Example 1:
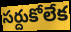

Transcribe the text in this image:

సర్దుకోలేక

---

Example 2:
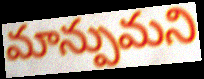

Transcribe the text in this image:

మాన్పుమని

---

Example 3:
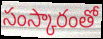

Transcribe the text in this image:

సంస్కారంతో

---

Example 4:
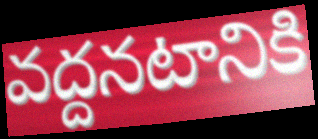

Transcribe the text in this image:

వద్దనటానికి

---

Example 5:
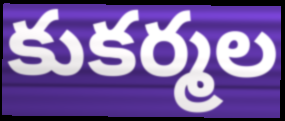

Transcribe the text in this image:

కుకర్మల